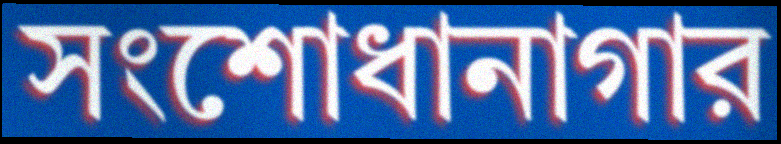
সংশোধানাগার